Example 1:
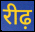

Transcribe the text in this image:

रीढ़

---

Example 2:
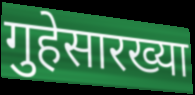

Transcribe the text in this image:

गुहेसारख्या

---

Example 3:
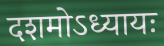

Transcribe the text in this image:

दशमोऽध्यायः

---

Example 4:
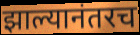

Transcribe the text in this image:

झाल्यानंतरच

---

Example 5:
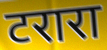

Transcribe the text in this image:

टरारा